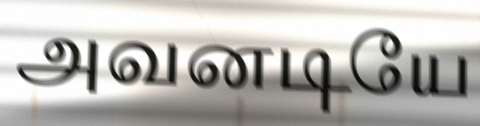
அவனடியே